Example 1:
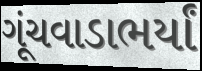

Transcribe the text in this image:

ગૂંચવાડાભર્યાં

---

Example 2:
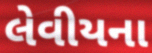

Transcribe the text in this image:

લેવીયના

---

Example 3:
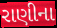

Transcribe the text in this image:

રાણીના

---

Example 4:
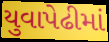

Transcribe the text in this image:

યુવાપેઢીમાં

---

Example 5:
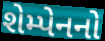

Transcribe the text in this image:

શેમ્પેનનો